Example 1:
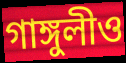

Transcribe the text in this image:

গাঙ্গুলীও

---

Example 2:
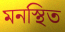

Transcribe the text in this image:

মনস্থিত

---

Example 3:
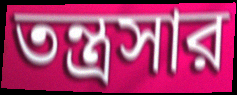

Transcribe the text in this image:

তন্ত্রসার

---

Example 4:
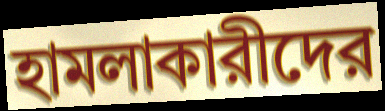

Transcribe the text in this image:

হামলাকারীদের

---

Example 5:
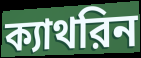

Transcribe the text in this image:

ক্যাথরিন